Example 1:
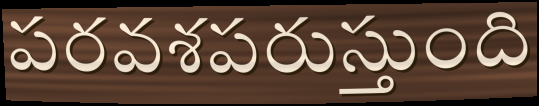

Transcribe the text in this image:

పరవశపరుస్తుంది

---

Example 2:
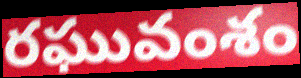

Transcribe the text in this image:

రఘువంశం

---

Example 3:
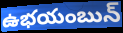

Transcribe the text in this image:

ఉభయంబున్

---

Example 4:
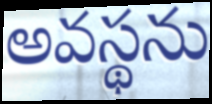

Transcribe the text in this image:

అవస్థను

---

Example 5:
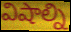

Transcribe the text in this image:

విషాల్ని